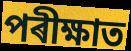
পৰীক্ষাত